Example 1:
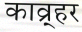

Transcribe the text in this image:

काव्र्हर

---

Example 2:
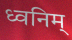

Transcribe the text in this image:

ध्वनिम्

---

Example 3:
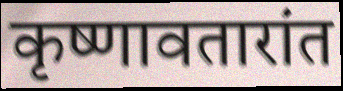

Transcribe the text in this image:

कृष्णावतारांत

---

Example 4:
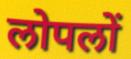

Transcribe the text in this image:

लोपलों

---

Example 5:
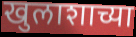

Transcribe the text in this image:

खुलाशाच्या